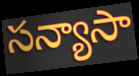
సన్యాసా